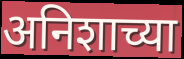
अनिशाच्या